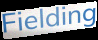
Fielding